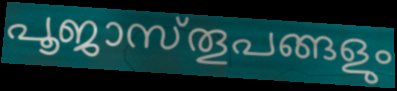
പൂജാസ്‌തൂപങ്ങളും